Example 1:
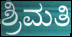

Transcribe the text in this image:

ಶ್ರಿಮತಿ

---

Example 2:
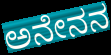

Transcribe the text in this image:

ಅನೇನನ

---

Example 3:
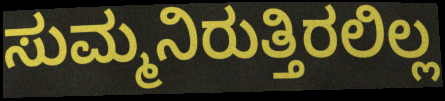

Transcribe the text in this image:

ಸುಮ್ಮನಿರುತ್ತಿರಲಿಲ್ಲ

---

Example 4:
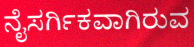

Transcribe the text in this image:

ನೈಸರ್ಗಿಕವಾಗಿರುವ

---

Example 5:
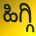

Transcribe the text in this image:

ಹಿಗ್ಗಿ